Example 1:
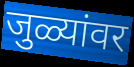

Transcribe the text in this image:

जुळ्यांवर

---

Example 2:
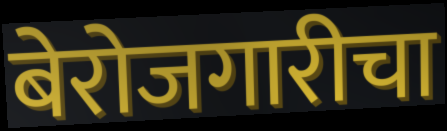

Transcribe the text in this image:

बेरोजगारीचा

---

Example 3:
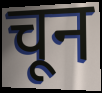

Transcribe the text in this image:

चून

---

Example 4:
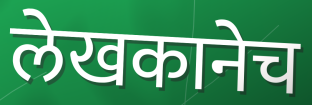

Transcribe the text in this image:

लेखकानेच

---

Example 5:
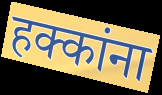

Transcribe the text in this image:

हक्कांना